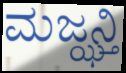
ಮಜ್ಝನ್ತಿ